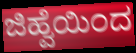
ಜಿಹ್ವೆಯಿಂದ